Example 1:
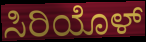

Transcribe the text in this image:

ಸಿರಿಯೊಳ್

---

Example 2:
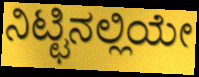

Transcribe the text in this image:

ನಿಟ್ಟಿನಲ್ಲಿಯೇ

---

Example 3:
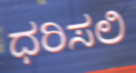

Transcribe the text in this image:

ಧರಿಸಲಿ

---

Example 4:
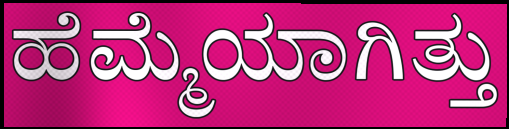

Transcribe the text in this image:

ಹೆಮ್ಮೆಯಾಗಿತ್ತು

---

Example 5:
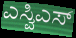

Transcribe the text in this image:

ಎಸ್ವಿಎಸ್